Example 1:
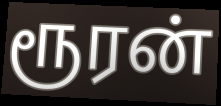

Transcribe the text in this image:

ரூரன்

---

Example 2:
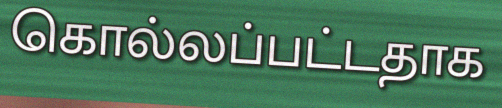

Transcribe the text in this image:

கொல்லப்பட்டதாக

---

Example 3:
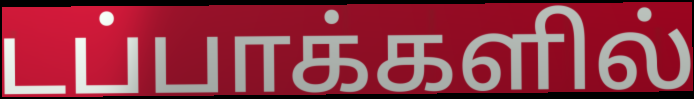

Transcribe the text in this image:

டப்பாக்களில்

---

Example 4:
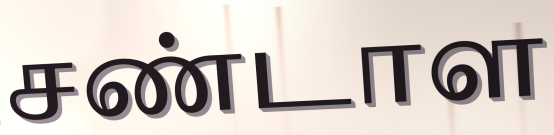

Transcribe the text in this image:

சண்டாள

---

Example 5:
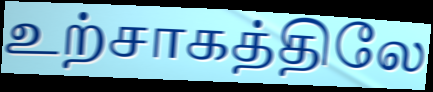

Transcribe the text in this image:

உற்சாகத்திலே